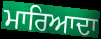
ਮਾਰਿਆਦਾ